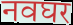
नवघर